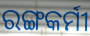
ରଙ୍ଗକର୍ମୀ